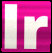
lr